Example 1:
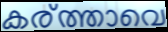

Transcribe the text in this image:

കര്ത്താവെ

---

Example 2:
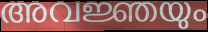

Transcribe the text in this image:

അവജ്ഞയും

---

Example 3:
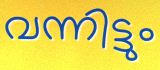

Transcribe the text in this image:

വന്നിട്ടും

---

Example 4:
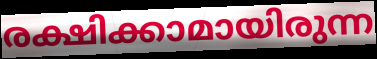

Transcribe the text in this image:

രക്ഷിക്കാമായിരുന്ന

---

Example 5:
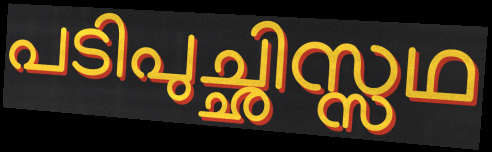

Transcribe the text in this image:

പടിപുച്ഛിസ്സഥ